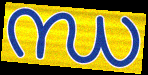
ന്ധ